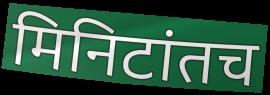
मिनिटांतच